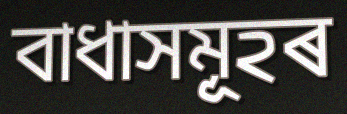
বাধাসমূহৰ